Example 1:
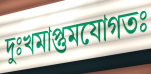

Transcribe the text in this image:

দুঃখমাপ্তুমযোগতঃ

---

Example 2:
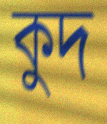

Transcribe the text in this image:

কুদ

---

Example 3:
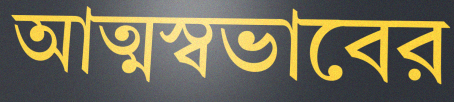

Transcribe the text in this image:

আত্মস্বভাবের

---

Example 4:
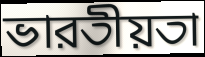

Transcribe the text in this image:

ভারতীয়তা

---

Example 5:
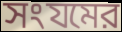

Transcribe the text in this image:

সংযমের